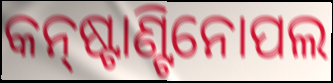
କନ୍‌ଷ୍ଟାଣ୍ଟିନୋପଲ